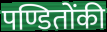
पण्डितोंकी